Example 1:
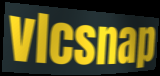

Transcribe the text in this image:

vlcsnap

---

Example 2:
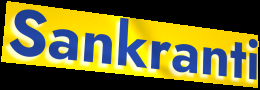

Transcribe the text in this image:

Sankranti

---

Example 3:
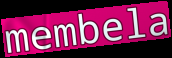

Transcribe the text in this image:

membela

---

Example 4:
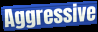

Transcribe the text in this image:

Aggressive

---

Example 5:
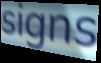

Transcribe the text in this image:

signs